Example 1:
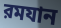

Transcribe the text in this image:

রমযান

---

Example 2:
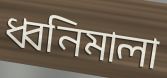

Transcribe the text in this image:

ধ্বনিমালা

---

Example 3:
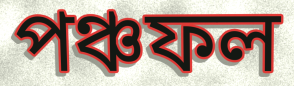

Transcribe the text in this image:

পঞ্চফল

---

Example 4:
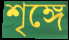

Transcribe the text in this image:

শৃঙ্গে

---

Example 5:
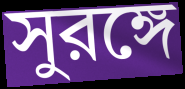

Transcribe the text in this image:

সুরঙ্গে